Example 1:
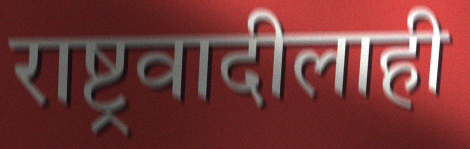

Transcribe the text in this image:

राष्ट्रवादीलाही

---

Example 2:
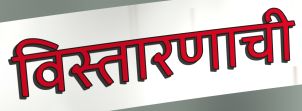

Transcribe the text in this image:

विस्तारणाची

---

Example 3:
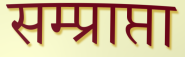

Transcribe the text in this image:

सम्प्राप्ता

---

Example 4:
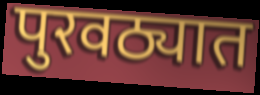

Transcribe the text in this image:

पुरवठ्यात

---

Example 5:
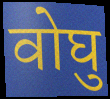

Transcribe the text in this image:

वोघु